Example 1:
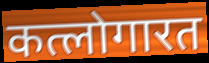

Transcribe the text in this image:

कत्लोगारत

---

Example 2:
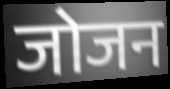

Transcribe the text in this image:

जोजन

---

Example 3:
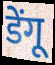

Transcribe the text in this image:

डेंगू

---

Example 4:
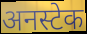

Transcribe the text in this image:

अनस्टेक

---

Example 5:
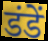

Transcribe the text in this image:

डंडें